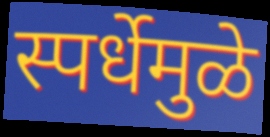
स्पर्धेमुळे